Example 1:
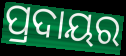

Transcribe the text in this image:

ପ୍ରଦାୟର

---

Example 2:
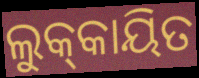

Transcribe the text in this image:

ଲୁକ୍‌କାୟିତ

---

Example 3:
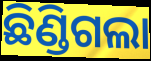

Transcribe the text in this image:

ଛିଣ୍ଡିଗଲା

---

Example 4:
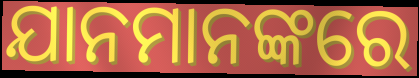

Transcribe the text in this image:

ଯାନମାନଙ୍କରେ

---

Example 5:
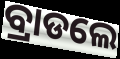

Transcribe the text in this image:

ବ୍ରାଡଲେ